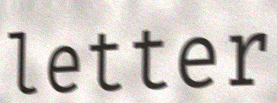
letter